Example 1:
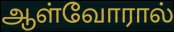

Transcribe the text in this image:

ஆள்வோரால்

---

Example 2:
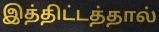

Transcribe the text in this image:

இத்திட்டத்தால்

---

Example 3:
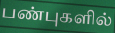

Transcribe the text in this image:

பண்புகளில்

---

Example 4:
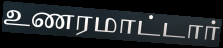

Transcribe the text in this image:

உணரமாட்டார்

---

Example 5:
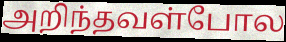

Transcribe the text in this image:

அறிந்தவள்போல